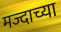
मज्दाच्या